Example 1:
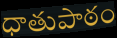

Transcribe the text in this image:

ధాతుపాఠం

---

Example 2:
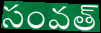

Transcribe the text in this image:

సంవత్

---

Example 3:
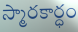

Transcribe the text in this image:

స్మారకార్ధం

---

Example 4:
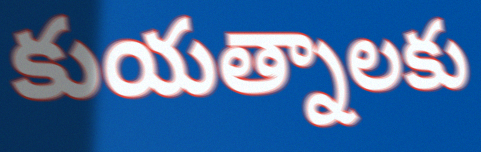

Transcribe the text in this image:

కుయత్నాలకు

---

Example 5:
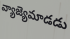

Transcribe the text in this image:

వ్యాజ్యెమాడడు